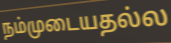
நம்முடையதல்ல